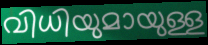
വിധിയുമായുള്ള